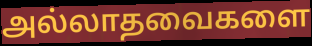
அல்லாதவைகளை